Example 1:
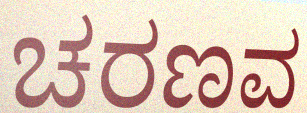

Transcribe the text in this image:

ಚರಣವ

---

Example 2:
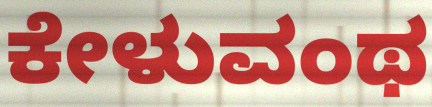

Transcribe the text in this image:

ಕೇಳುವಂಥ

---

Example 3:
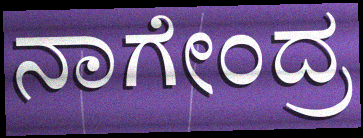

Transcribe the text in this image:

ನಾಗೇಂದ್ರ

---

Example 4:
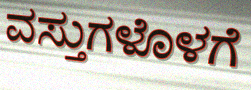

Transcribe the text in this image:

ವಸ್ತುಗಳೊಳಗೆ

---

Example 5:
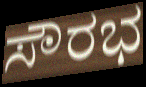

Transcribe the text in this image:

ಸೌರಭ